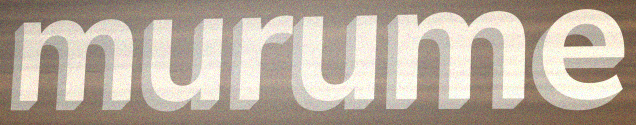
murume